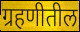
ग्रहणीतील